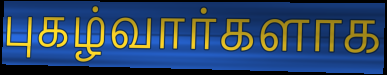
புகழ்வார்களாக